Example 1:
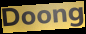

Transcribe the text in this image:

Doong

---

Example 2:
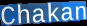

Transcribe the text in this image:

Chakan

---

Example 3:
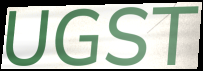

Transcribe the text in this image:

UGST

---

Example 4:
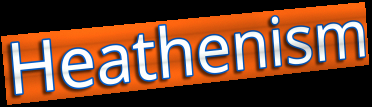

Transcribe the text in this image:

Heathenism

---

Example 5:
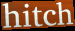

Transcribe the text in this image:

hitch